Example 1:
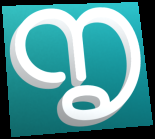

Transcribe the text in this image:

നൃ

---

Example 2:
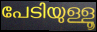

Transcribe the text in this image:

പേടിയുള്ളൂ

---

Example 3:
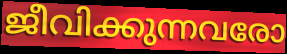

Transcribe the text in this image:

ജീവിക്കുന്നവരോ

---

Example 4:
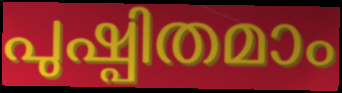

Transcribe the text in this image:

പുഷ്പിതമാം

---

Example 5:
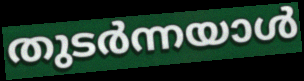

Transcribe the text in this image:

തുടർന്നയാൾ